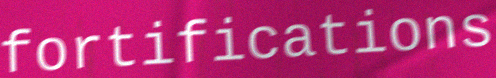
fortifications